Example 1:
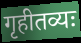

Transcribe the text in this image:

गृहीतव्यः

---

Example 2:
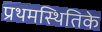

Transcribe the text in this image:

प्रथमस्थितिके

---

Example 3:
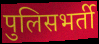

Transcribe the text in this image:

पुलिसभर्ती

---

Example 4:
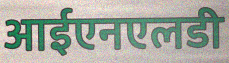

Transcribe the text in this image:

आईएनएलडी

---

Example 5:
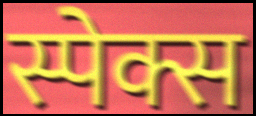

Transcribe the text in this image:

स्पेक्स